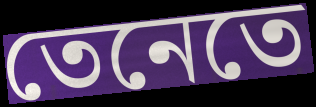
তেনেতে